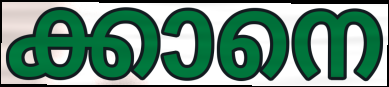
ക്കാനെ